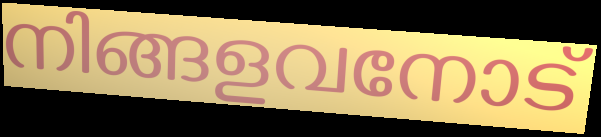
നിങ്ങളവനോട്